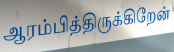
ஆரம்பித்திருக்கிறேன்